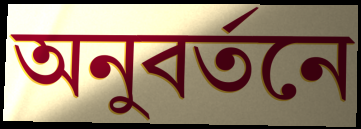
অনুবর্তনে